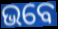
ଭବେ